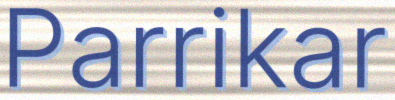
Parrikar